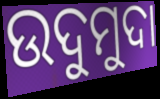
ଉଦୁମୁଦା